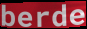
berde